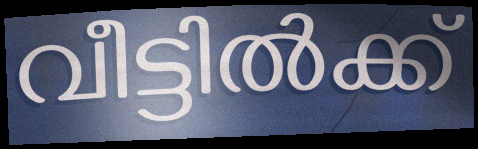
വീട്ടിൽക്ക്